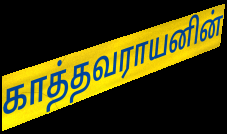
காத்தவராயனின்